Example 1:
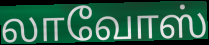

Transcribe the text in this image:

லாவோஸ்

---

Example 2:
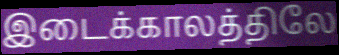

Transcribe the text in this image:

இடைக்காலத்திலே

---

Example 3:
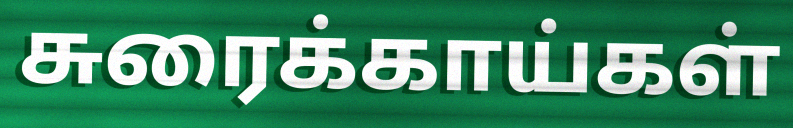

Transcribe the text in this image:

சுரைக்காய்கள்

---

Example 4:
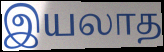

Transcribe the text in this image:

இயலாத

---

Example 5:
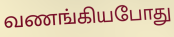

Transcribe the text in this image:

வணங்கியபோது